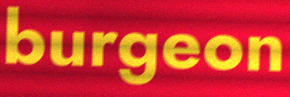
burgeon